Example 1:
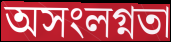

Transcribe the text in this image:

অসংলগ্নতা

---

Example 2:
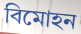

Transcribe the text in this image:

বিমোহন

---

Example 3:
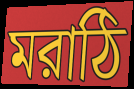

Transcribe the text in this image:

মরাঠি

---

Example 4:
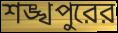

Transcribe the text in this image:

শঙ্খপুরের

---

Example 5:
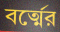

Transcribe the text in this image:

বর্ত্মের